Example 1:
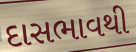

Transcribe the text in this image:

દાસભાવથી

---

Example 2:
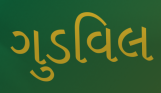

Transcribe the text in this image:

ગુડવિલ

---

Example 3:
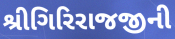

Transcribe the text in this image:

શ્રીગિરિરાજજીની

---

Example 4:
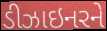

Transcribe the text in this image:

ડીઝાઇનરને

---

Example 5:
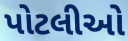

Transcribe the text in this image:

પોટલીઓ